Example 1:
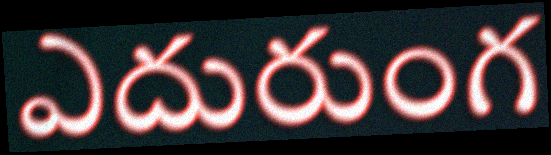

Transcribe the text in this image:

ఎదురుంగ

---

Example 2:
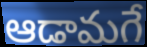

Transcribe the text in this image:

ఆడామగే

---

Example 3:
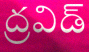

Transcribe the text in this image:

ద్రవిడ్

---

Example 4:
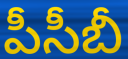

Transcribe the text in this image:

పీసీబీ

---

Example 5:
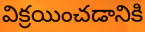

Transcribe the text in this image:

విక్రయించడానికి